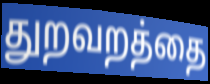
துறவறத்தை